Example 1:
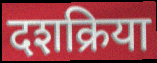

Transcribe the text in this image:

दशक्रिया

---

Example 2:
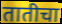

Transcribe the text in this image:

तातीचा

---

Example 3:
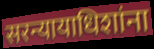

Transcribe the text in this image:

सरन्यायाधिशांना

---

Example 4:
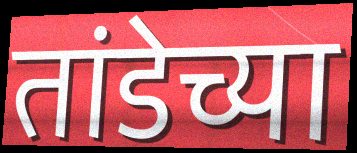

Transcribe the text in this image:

तांडेच्या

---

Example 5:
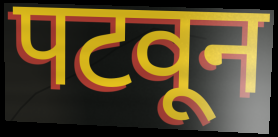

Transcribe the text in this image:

पटवून